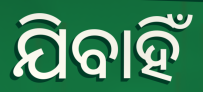
ଯିବାହିଁ